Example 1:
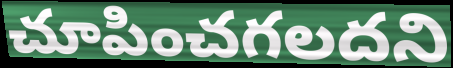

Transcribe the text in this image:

చూపించగలదని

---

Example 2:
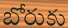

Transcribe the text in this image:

బోరుకు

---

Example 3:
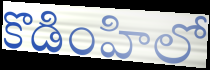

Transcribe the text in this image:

కొడింహిలో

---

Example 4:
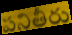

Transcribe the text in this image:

పనితీరు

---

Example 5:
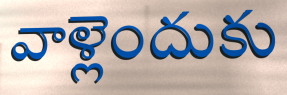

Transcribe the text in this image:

వాళ్లెందుకు